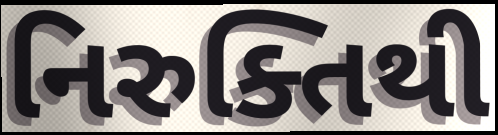
નિરુક્તિથી